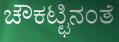
ಚೌಕಟ್ಟಿನಂತೆ